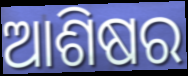
ଆଶିଷର